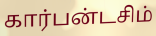
கார்பன்டசிம்